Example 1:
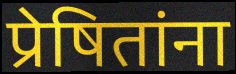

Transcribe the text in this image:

प्रेषितांना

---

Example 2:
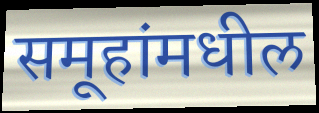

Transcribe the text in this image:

समूहांमधील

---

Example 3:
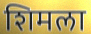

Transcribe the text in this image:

शिमला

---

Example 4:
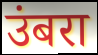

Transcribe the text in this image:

उंबरा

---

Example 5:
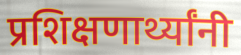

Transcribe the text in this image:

प्रशिक्षणार्थ्यांनी